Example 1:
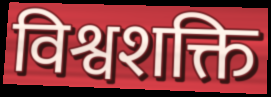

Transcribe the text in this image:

विश्वशक्ति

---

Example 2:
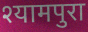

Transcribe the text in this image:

श्यामपुरा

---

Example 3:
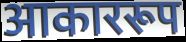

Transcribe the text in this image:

आकाररूप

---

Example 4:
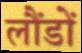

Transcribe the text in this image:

लौंडों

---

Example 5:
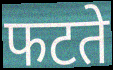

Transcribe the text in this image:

फटते